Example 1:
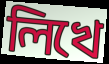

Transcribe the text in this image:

লিখে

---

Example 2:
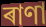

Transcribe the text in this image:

ৰাণা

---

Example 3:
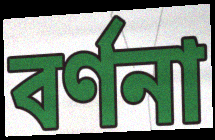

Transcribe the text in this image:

বৰ্ণনা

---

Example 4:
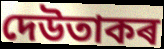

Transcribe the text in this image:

দেউতাকৰ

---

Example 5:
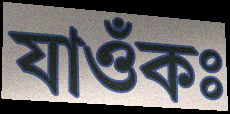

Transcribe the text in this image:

যাওঁকঃ